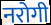
नरोगी